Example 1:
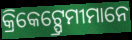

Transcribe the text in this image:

କ୍ରିକେଟ୍ପ୍ରେମୀମାନେ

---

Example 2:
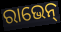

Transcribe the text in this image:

ରାଭେନ୍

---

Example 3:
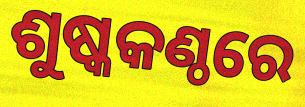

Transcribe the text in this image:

ଶୁଷ୍କକଣ୍ଠରେ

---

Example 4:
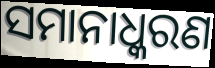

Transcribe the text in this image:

ସମାନାଧ୍କରଣ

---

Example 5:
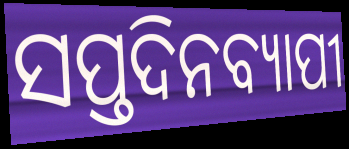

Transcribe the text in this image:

ସପ୍ତଦିନବ୍ୟାପୀ